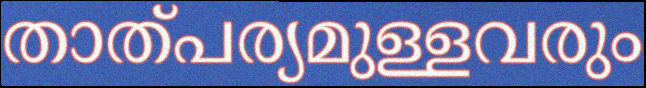
താത്പര്യമുള്ളവരും